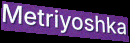
Metriyoshka